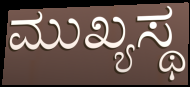
ಮುಖ್ಯಸ್ಥ